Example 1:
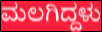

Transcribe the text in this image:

ಮಲಗಿದ್ದಳು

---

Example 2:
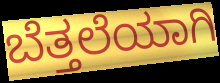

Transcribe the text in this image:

ಬೆತ್ತಲೆಯಾಗಿ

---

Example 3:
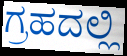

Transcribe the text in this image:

ಗ್ರಹದಲ್ಲಿ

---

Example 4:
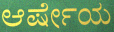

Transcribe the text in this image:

ಆರ್ಷೇಯ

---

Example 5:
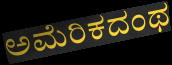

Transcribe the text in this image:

ಅಮೆರಿಕದಂಥ